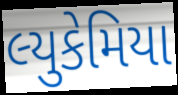
લ્યુકેમિયા